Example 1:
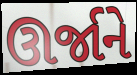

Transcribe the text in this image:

ઊર્જાને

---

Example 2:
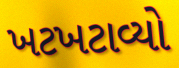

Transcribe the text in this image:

ખટખટાવ્યો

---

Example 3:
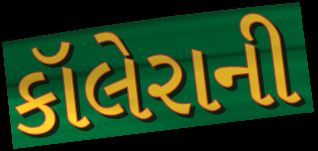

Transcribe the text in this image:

કૉલેરાની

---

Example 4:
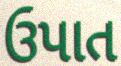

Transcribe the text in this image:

ઉપાત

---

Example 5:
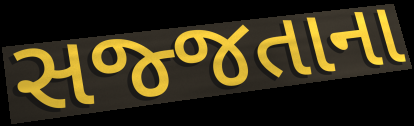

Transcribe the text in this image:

સજ્જતાના